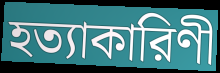
হত্যাকারিণী